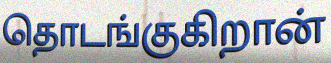
தொடங்குகிறான்